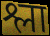
श्ला